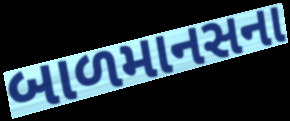
બાળમાનસના